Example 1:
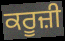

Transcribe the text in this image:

ਕਰੂਜ਼ੀ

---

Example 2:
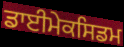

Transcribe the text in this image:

ਡਾਈਮੇਕਸਿਡਮ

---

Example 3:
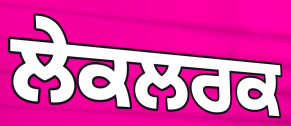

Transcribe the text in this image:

ਲੇਕਲਰਕ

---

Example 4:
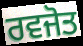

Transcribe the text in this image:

ਰਵਜੋਤ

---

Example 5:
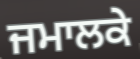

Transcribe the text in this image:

ਜਮਾਲਕੇ